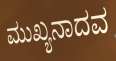
ಮುಖ್ಯನಾದವ